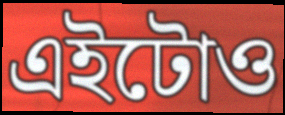
এইটোও